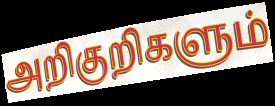
அறிகுறிகளும்